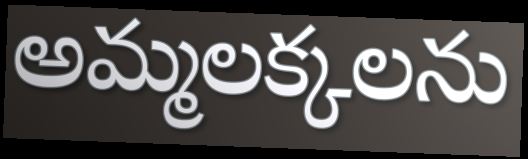
అమ్మలక్కలను